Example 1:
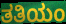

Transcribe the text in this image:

ತತಿಯಂ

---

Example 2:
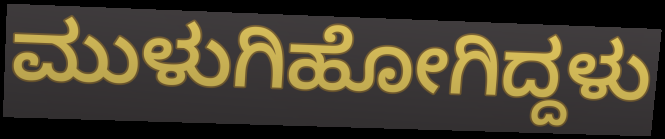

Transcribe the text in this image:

ಮುಳುಗಿಹೋಗಿದ್ದಳು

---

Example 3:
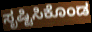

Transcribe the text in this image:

ಸೃಷ್ಟಿಸಿಕೊಂಡ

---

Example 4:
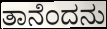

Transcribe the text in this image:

ತಾನೆಂದನು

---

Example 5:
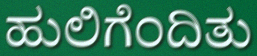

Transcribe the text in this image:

ಹುಲಿಗೆಂದಿತು